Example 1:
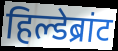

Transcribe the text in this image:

हिल्डेब्रांट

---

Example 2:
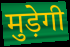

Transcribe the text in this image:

मुड़ेगी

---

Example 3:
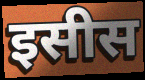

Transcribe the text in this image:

इसीस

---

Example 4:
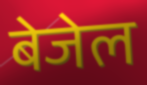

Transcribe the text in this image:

बेजेल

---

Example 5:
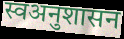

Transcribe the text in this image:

स्वअनुशासन